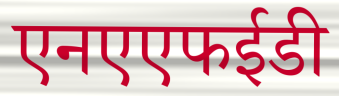
एनएएफईडी